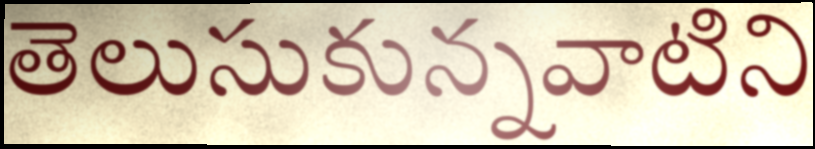
తెలుసుకున్నవాటిని